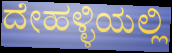
ದೇಹಳ್ಳಿಯಲ್ಲಿ